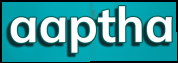
aaptha